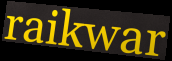
raikwar